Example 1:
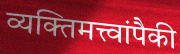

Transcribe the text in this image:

व्यक्तिमत्त्वांपैकी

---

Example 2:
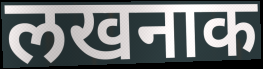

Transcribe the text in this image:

लखनाक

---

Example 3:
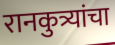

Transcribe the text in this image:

रानकुत्र्यांचा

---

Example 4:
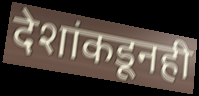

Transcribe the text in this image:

देशांकडूनही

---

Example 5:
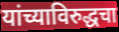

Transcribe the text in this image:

यांच्याविरुद्धचा